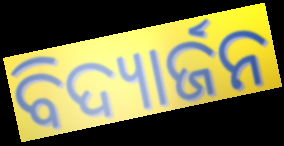
ବିଦ୍ୟାର୍ଜନ